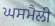
ਘਸਮੈਲੀ